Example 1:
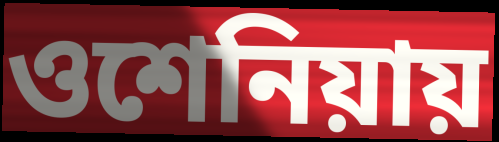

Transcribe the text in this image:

ওশেনিয়ায়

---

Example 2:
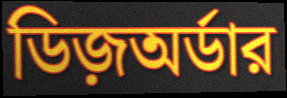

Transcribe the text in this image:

ডিজ়অর্ডার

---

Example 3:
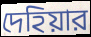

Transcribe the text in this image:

দেহিয়ার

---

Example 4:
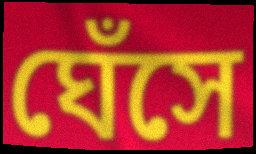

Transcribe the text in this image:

ঘেঁসে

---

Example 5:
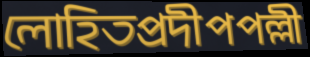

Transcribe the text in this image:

লোহিতপ্রদীপপল্লী